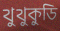
থুথুকুডি